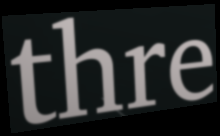
thre